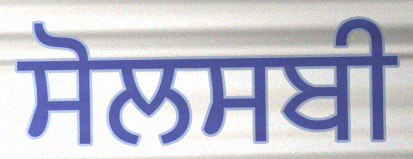
ਸੋਲਸਬੀ